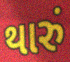
થારું